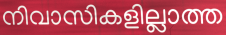
നിവാസികളില്ലാത്ത